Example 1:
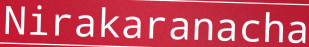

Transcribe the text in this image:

Nirakaranacha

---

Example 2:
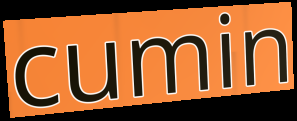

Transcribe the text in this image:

cumin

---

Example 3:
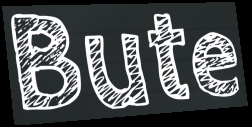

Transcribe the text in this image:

Bute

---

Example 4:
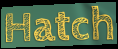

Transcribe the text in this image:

Hatch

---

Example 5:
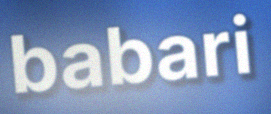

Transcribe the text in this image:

babari